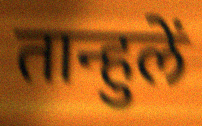
तान्हुलें